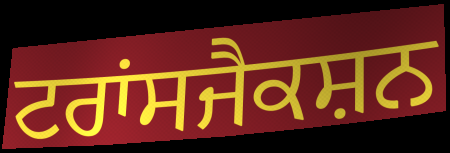
ਟਰਾਂਸਜੈਕਸ਼ਨ